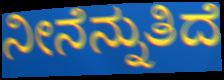
ನೀನೆನ್ನುತಿದೆ